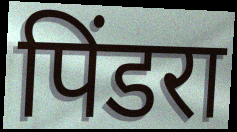
पिंडरा